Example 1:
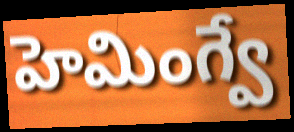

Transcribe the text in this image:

హెమింగ్వే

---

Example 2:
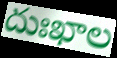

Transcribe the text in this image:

దుఃఖాల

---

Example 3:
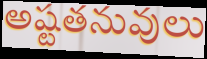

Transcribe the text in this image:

అష్టతనువులు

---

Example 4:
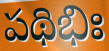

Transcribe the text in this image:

పథిభిః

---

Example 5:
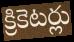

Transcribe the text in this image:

క్రికెటర్లు